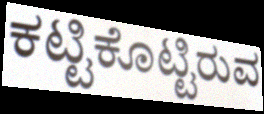
ಕಟ್ಟಿಕೊಟ್ಟಿರುವ